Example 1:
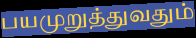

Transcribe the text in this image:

பயமுறுத்துவதும்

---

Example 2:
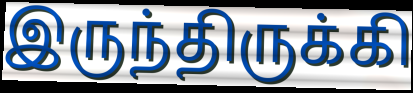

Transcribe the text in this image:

இருந்திருக்கி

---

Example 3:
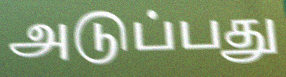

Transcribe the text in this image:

அடுப்பது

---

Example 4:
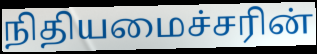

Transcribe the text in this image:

நிதியமைச்சரின்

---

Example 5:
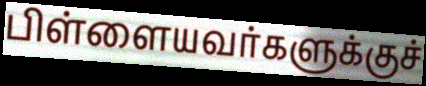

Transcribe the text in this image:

பிள்ளையவர்களுக்குச்